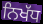
ਨਿਖੱਧ